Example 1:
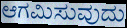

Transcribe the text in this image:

ಆಗಮಿಸುವುದು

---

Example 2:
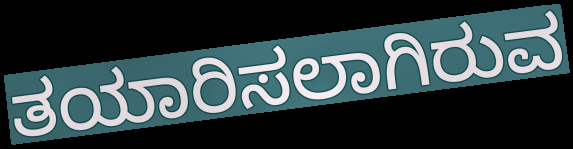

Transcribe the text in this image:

ತಯಾರಿಸಲಾಗಿರುವ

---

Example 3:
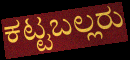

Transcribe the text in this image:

ಕಟ್ಟಬಲ್ಲರು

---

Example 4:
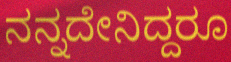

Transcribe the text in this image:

ನನ್ನದೇನಿದ್ದರೂ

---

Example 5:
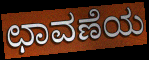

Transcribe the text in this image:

ಛಾವಣೆಯ